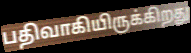
பதிவாகியிருக்கிறது